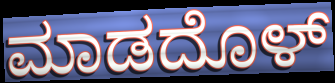
ಮಾಡದೊಳ್